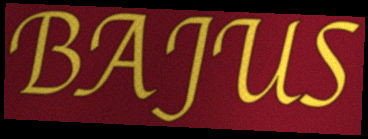
BAJUS